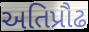
અતિપ્રૌઢ